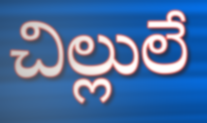
చిల్లులే